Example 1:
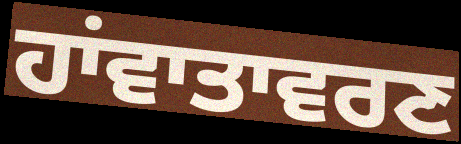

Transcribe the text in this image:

ਹਾਂਵਾਤਾਵਰਣ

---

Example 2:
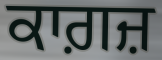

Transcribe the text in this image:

ਕਾਗ਼ਜ਼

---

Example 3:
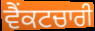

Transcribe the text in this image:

ਵੈਂਕਟਚਾਰੀ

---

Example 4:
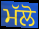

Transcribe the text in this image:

ਮੱਲੋ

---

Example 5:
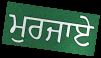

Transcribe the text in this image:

ਮੁਰਜਾਏ